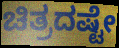
ಚಿತ್ರದಷ್ಟೇ